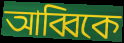
আব্বিকে